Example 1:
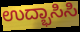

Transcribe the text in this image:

ಉದ್ಭಾಸಿಸಿ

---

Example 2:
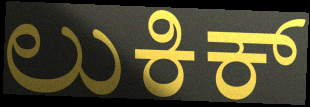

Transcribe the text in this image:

ಲುಕಿಕ್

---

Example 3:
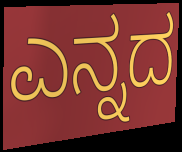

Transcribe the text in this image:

ಎನ್ನದ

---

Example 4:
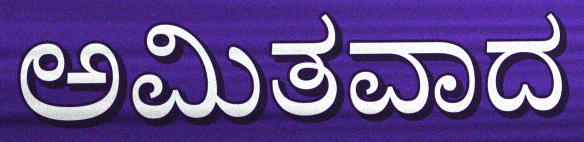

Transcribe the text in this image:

ಅಮಿತವಾದ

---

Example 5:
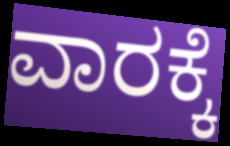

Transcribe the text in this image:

ವಾರಕ್ಕೆ